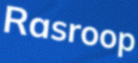
Rasroop